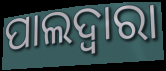
ପାଲଦ୍ୱାରା